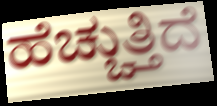
ಹೆಚ್ಚುತ್ತಿದೆ